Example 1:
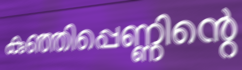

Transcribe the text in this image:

കുഞ്ഞിപ്പെണ്ണിന്റെ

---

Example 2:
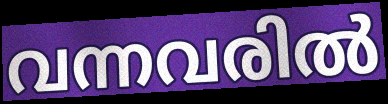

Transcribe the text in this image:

വന്നവരിൽ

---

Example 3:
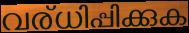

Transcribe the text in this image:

വര്ധിപ്പിക്കുക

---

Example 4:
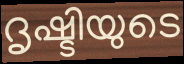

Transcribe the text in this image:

ദൃഷ്ടിയുടെ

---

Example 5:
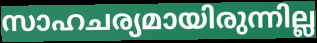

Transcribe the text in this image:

സാഹചര്യമായിരുന്നില്ല